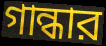
গান্ধার